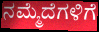
ನಮ್ಮೆದೆಗಳಿಗೆ